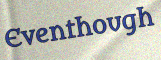
Eventhough